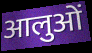
आलुओं